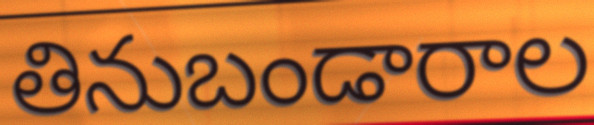
తినుబండారాల